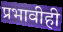
प्रभावीही